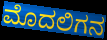
ಮೊದಲಿಗನ